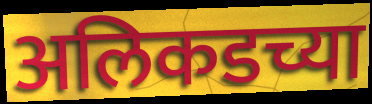
अलिकडच्या